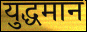
युद्धमान